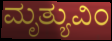
ಮೃತ್ಯುವಿಂ